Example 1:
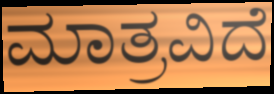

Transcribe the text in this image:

ಮಾತ್ರವಿದೆ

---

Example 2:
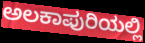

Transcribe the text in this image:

ಅಲಕಾಪುರಿಯಲ್ಲಿ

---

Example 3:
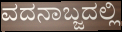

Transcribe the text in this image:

ವದನಾಬ್ಜದಲ್ಲಿ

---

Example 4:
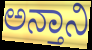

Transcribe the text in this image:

ಅನ್ತಾನಿ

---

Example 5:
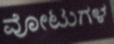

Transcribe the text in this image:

ವೋಟುಗಳ